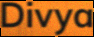
Divya